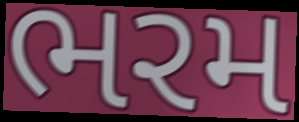
ભરમ